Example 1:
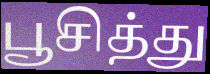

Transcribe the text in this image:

பூசித்து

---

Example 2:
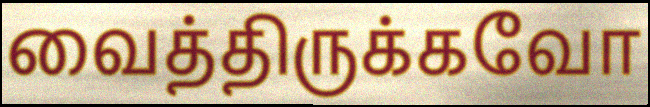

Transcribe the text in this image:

வைத்திருக்கவோ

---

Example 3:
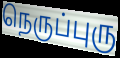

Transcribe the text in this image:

நெருப்புரு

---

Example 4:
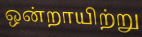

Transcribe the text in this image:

ஒன்றாயிற்று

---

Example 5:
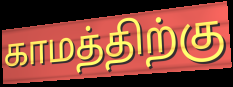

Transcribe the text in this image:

காமத்திற்கு